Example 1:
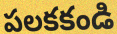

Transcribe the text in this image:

పలకకండి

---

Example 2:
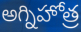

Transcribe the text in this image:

అగ్నిహోత్ర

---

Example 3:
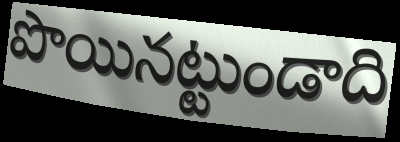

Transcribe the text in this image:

పొయినట్టుండాది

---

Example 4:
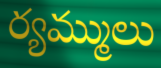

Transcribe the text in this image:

ర్యమ్ములు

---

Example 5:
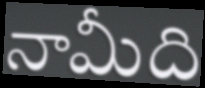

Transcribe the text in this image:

నామీది